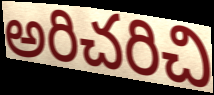
అరిచరిచి